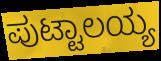
ಪುಟ್ಟಾಲಯ್ಯ